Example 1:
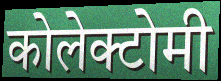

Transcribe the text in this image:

कोलेक्टोमी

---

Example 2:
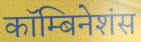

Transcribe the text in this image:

कॉम्बिनेशंस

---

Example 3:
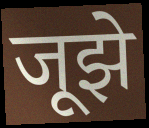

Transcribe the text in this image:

जूझे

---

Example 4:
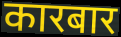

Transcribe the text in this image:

कारबार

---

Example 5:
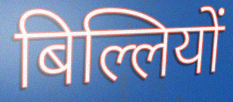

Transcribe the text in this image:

बिल्लियों